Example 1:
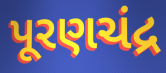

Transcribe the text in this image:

પૂરણચંદ્ર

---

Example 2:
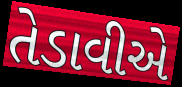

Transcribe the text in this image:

તેડાવીએ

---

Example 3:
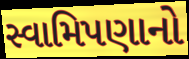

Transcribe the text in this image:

સ્વામિપણાનો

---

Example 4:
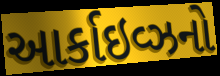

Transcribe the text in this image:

આર્કાઇવ્ઝનો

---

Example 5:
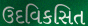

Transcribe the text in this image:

ઉદવિકસિત